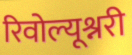
रिवोल्यूश्नरी